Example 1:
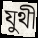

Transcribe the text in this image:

যুথী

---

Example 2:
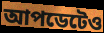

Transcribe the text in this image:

আপডেটেও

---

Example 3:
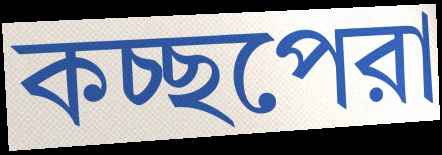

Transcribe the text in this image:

কচ্ছপেরা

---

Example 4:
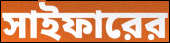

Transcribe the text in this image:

সাইফারের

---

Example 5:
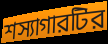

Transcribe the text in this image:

শস্যাগারটির